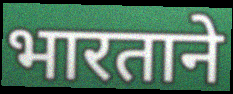
भारताने